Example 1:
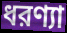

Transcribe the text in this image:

ধরণ্যা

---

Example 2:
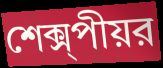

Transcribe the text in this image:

শেক্স্পীয়র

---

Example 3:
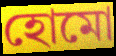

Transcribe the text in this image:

হোমো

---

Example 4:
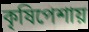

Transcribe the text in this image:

কৃষিপেশায়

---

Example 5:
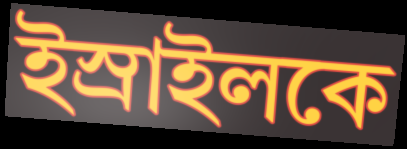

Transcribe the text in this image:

ইস্রাইলকে